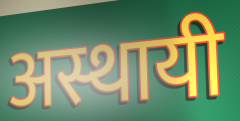
अस्थायी